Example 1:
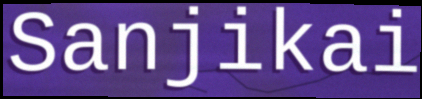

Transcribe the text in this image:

Sanjikai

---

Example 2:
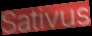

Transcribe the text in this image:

Sativus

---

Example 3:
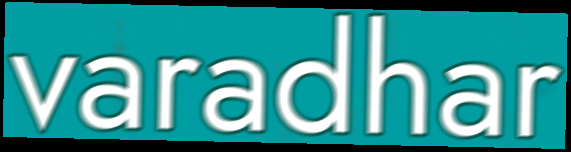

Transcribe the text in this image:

varadhar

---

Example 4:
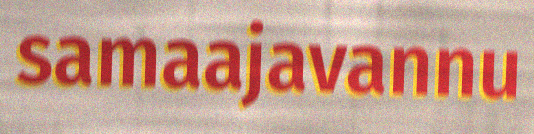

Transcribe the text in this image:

samaajavannu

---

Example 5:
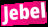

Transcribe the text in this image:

Jebel